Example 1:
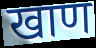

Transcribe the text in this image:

खाण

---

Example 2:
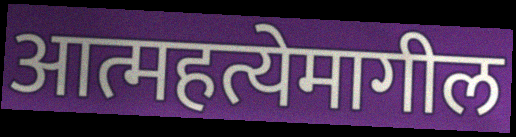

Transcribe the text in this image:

आत्महत्येमागील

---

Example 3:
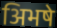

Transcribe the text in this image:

अिभषे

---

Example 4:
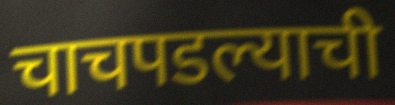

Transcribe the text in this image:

चाचपडल्याची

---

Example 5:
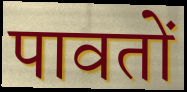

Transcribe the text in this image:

पावतों